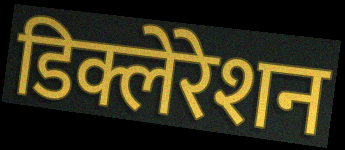
डिक्लेरेशन